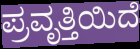
ಪ್ರವೃತ್ತಿಯಿದೆ